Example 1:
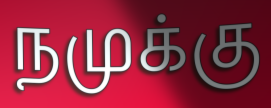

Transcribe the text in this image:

நமுக்கு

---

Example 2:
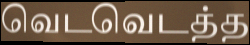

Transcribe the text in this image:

வெடவெடத்த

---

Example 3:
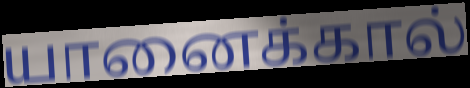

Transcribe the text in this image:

யானைக்கால்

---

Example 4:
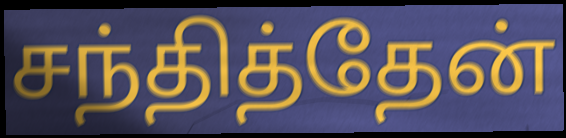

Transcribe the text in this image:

சந்தித்தேன்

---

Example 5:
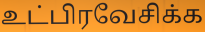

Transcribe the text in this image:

உட்பிரவேசிக்க